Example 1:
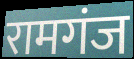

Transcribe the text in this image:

रामगंज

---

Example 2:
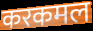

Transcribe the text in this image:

करकमल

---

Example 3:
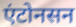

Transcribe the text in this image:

एंटोनसन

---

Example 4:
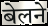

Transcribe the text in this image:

बेलने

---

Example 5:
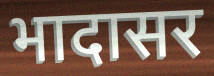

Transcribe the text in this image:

भादासर